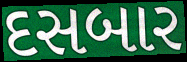
દસબાર